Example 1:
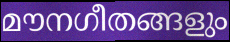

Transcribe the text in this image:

മൗനഗീതങ്ങളും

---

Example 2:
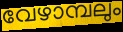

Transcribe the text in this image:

വേഴാമ്പലും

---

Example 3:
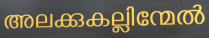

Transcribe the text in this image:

അലക്കുകല്ലിന്മേൽ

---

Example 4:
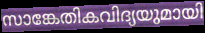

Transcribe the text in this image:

സാങ്കേതികവിദ്യയുമായി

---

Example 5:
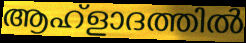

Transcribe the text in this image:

ആഹ്ളാദത്തിൽ